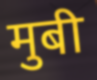
मुबी